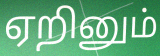
ஏறினும்